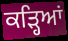
ਕੜ੍ਹਿਆਂ